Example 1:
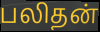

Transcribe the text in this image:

பலிதன்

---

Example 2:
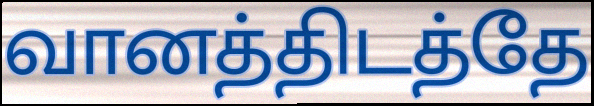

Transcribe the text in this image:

வானத்திடத்தே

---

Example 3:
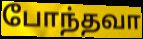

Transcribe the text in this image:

போந்தவா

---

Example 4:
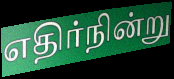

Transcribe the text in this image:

எதிர்நின்று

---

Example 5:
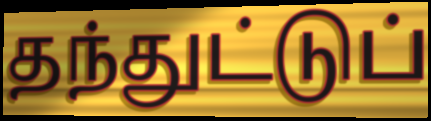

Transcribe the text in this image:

தந்துட்டுப்